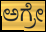
ಅಗ್ರೇ